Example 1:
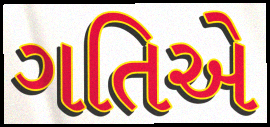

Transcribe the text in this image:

ગતિએ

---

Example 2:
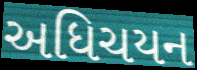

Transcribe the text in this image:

અધિચયન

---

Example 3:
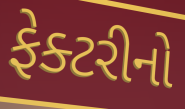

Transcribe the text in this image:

ફેક્ટરીનો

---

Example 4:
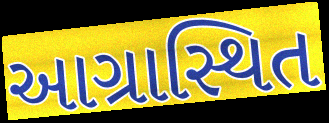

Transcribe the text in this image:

આગ્રાસ્થિત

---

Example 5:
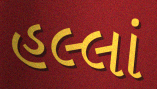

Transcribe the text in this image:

હલ્લાં